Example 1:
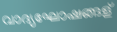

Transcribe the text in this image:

വാദ്യഘോഷങ്ങള്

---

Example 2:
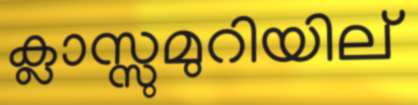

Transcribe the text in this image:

ക്ലാസ്സുമുറിയില്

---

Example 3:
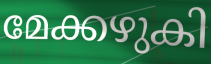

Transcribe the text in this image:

മേക്കഴുകി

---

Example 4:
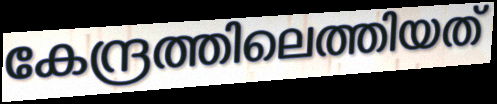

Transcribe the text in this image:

കേന്ദ്രത്തിലെത്തിയത്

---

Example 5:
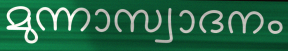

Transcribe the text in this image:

മുന്നാസ്വാദനം